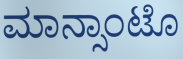
ಮಾನ್ಸಾಂಟೊ